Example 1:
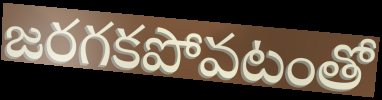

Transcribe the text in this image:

జరగకపోవటంతో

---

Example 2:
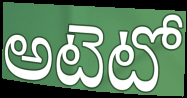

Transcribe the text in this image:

అటెటో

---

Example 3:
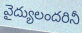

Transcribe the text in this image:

వైద్యులందరినీ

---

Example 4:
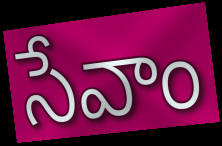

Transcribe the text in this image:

సేవాం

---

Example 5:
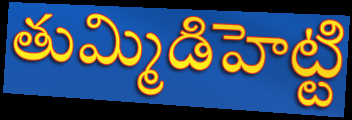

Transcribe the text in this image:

తుమ్మిడిహెట్టి